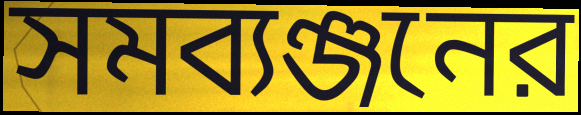
সমব্যঞ্জনের